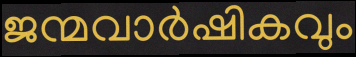
ജന്മവാർഷികവും